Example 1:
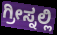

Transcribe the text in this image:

ಗ್ರೀಸ್ನಲ್ಲಿ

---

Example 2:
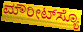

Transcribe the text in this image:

ಮೌರೀಟ್‌ಸ್ಯೊ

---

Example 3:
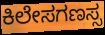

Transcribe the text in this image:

ಕಿಲೇಸಗಣಸ್ಸ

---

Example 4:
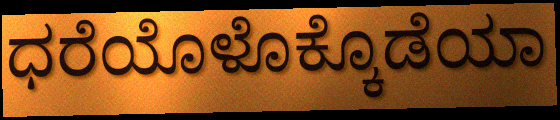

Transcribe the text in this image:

ಧರೆಯೊಳೊಕ್ಕೊಡೆಯಾ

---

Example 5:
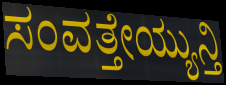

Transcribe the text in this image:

ಸಂವತ್ತೇಯ್ಯುನ್ತಿ